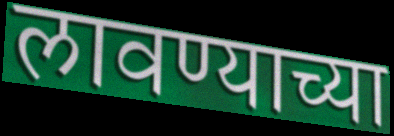
लावण्याच्या